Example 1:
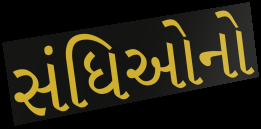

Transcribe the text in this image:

સંધિઓનો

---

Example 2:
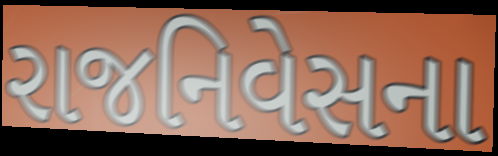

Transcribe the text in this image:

રાજનિવેસના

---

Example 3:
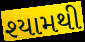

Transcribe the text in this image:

શ્યામથી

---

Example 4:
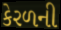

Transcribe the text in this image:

કેરળની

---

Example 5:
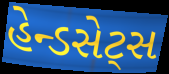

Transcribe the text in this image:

હેન્ડસેટ્સ